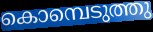
കൊമ്പെടുത്തു